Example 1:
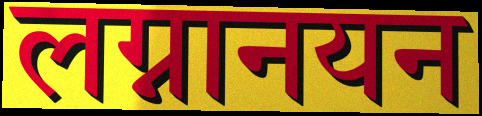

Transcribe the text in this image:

लग्नानयन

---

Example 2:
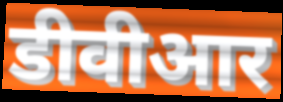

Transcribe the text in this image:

डीवीआर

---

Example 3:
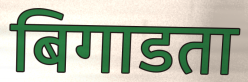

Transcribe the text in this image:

बिगाडता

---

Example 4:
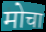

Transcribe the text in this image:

मोचा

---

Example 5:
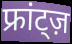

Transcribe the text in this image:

फ्रांट्ज़